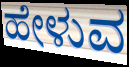
ಹೇಳುವ